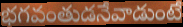
భగవంతుడనేవాడుంటే